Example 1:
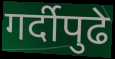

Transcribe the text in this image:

गर्दीपुढे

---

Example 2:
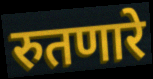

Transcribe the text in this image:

रुतणारे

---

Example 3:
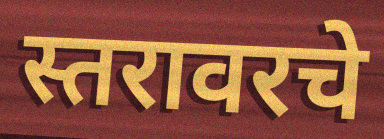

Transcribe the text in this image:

स्तरावरचे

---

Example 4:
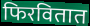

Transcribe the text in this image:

फिरवितात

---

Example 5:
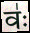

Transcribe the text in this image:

वः॑